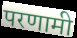
परणामी